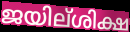
ജയില്ശിക്ഷ